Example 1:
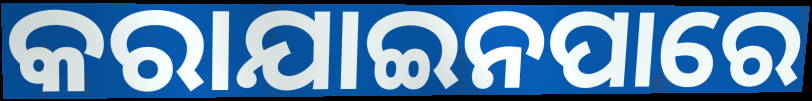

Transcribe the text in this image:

କରାଯାଇନପାରେ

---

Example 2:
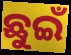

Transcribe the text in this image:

ଛୁଇଁ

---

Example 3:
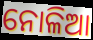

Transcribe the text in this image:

ନୋଳିଆ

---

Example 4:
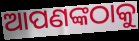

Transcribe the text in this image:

ଆପଣଙ୍କଠାକୁ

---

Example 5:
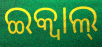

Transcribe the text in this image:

ଇକ୍ୱାଲ୍